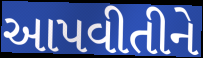
આપવીતીને